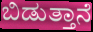
ಬಿಡುತ್ತಾನೆ